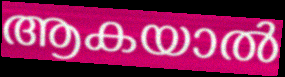
ആകയാൽ